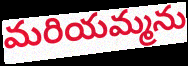
మరియమ్మను